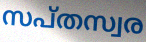
സപ്തസ്വര